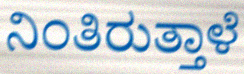
ನಿಂತಿರುತ್ತಾಳೆ